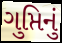
ગુપ્તિનું